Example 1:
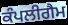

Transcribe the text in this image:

ਕੰਪਲੀਗੈਮ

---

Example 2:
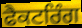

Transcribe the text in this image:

ਫੈਕਟਰਿੰਗ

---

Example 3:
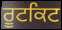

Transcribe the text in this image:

ਰੂਟਕਿਟ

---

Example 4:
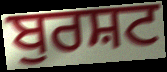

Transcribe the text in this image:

ਬੁਰਸ਼ਟ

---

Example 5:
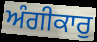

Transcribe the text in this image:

ਅੰਗੀਕਾਰੁ